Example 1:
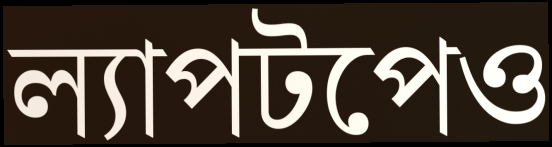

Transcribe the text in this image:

ল্যাপটপেও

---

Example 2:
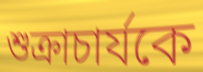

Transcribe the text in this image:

শুক্রাচার্যকে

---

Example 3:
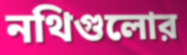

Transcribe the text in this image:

নথিগুলোর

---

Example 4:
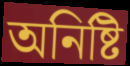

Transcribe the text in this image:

অনিষ্টি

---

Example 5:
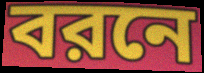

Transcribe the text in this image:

বরনে